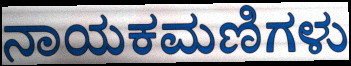
ನಾಯಕಮಣಿಗಳು